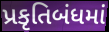
પ્રકૃતિબંધમાં